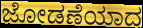
ಜೋಡಣೆಯಾದ